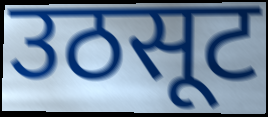
उठसूट